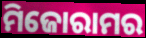
ମିଜୋରାମର